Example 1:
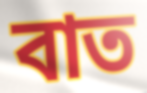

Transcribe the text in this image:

বাত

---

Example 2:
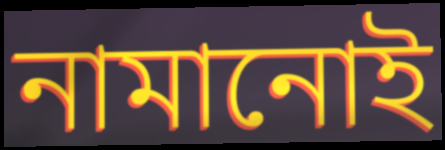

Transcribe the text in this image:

নামানোই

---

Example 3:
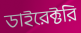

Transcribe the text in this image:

ডাইরেক্টরি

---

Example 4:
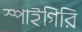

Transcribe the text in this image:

স্পাইগিরি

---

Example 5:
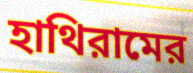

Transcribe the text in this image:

হাথিরামের